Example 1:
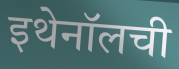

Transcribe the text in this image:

इथेनॉलची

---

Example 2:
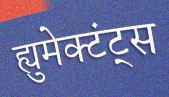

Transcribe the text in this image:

ह्युमेक्टंट्स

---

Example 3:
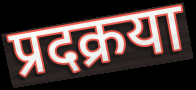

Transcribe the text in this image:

प्रदक्रया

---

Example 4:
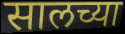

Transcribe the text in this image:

सालच्या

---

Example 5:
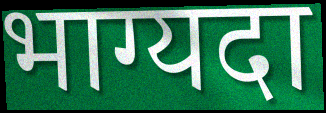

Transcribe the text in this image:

भाग्यदा